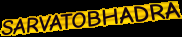
SARVATOBHADRA